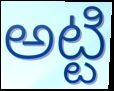
అట్టి